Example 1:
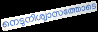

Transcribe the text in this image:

നെടുനിശ്വാസത്തോടെ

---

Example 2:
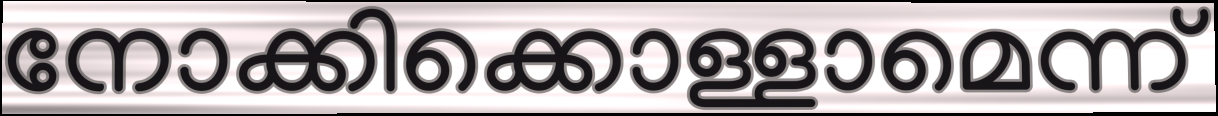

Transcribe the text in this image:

നോക്കിക്കൊള്ളാമെന്ന്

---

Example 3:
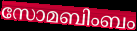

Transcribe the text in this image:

സോമബിംബം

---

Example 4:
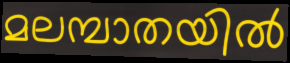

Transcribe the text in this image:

മലമ്പാതയിൽ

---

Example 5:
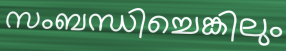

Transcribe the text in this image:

സംബന്ധിച്ചെങ്കിലും